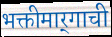
भक्तीमार्गाची